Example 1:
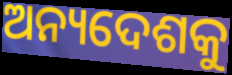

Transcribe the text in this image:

ଅନ୍ୟଦେଶକୁ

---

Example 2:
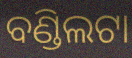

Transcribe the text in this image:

ବଣ୍ଡିଲଟା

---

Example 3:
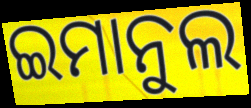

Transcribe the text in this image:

ଇମାନୁଲ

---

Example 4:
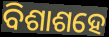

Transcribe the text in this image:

ବିଶାଶହେ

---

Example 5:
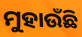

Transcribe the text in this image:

ମୁହାଉଁଛି